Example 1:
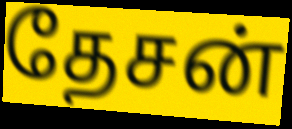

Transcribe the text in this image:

தேசன்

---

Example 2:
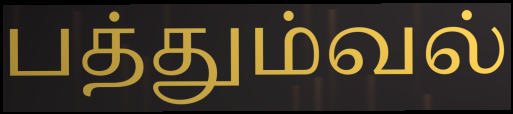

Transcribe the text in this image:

பத்தும்வல்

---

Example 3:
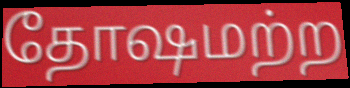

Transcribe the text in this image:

தோஷமற்ற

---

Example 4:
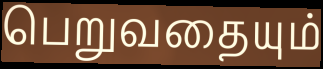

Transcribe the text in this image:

பெறுவதையும்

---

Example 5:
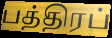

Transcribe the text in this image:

பத்திரப்